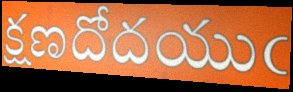
క్షణదోదయుఁ